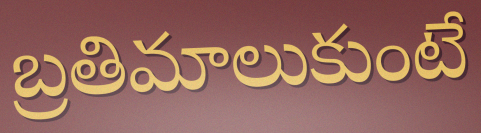
బ్రతిమాలుకుంటే